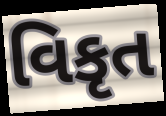
વિકૃત